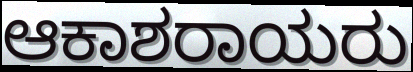
ಆಕಾಶರಾಯರು